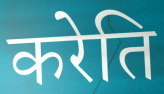
करेति